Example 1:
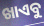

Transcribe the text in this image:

ଖାଏବୁ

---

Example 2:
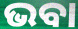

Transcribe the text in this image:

ଭବା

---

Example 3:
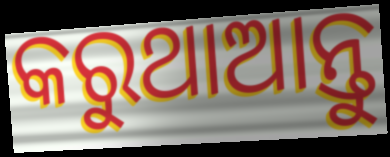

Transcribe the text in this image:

କରୁଥାଆନ୍ତୁ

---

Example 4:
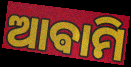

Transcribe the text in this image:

ଆଵାମି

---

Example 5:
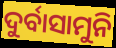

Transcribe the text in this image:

ଦୁର୍ବାସାମୁନି